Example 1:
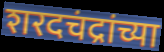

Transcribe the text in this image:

शरदचंद्रांच्या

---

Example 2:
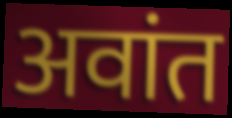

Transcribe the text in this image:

अवांत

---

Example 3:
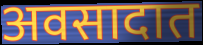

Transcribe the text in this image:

अवसादात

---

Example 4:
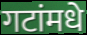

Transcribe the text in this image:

गटांमधे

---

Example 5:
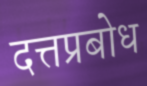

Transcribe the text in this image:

दत्तप्रबोध